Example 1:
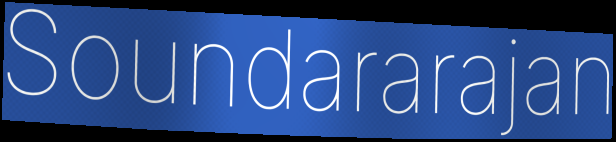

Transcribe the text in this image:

Soundararajan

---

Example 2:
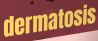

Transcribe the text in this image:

dermatosis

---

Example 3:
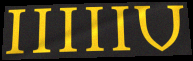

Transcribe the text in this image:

IIIIIU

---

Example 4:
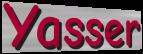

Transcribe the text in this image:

Yasser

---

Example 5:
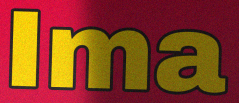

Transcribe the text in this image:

Ima